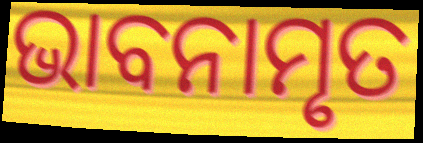
ଭାବନାମୃତ